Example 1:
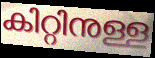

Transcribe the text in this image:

കിറ്റിനുള്ള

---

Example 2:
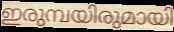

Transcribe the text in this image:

ഇരുമ്പയിരുമായി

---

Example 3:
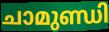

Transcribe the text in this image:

ചാമുണ്ഡി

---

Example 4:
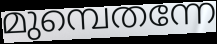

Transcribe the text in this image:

മുമ്പെതന്നേ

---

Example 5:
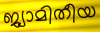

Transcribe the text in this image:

ജ്യാമിതീയ